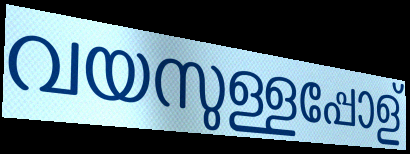
വയസുള്ളപ്പോള്